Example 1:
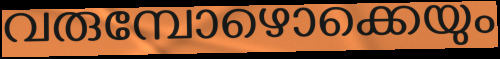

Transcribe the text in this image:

വരുമ്പോഴൊക്കെയും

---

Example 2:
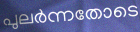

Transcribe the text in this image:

പുലർന്നതോടെ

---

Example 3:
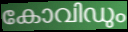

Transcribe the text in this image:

കോവിഡും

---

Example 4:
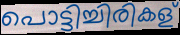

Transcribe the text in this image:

പൊട്ടിച്ചിരികള്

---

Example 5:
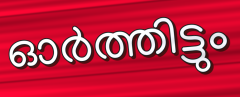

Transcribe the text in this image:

ഓർത്തിട്ടും